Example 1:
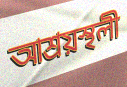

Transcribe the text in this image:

আশ্ৰয়স্থলী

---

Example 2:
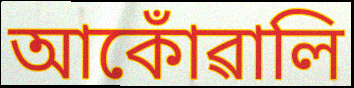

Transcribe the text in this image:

আকোঁৱালি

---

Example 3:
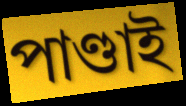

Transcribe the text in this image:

পাণ্ডাই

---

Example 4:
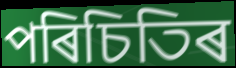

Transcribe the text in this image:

পৰিচিতিৰ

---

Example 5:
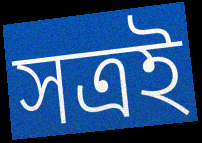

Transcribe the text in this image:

সত্ৰই